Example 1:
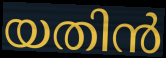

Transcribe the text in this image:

യതിൻ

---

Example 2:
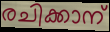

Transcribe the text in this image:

രചിക്കാന്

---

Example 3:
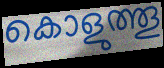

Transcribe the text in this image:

കൊളുത്തൂ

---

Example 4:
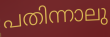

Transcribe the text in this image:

പതിന്നാലു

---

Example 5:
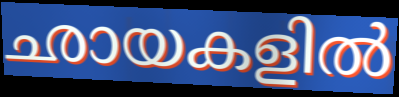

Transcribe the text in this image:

ഛായകളിൽ